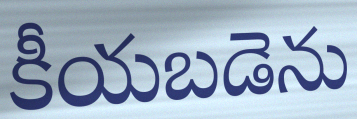
కీయబడెను